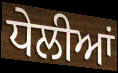
ਧੇਲੀਆਂ